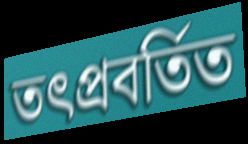
তৎপ্রবর্তিত